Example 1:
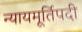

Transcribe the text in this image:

न्यायमूर्तिपदी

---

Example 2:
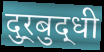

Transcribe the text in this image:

दुर्बुद्धी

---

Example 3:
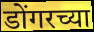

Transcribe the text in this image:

डोंगरच्या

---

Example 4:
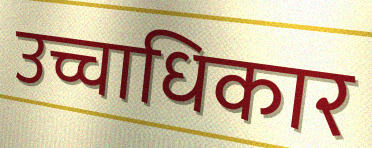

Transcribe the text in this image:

उच्चाधिकार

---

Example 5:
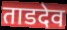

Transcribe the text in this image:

ताडदेव